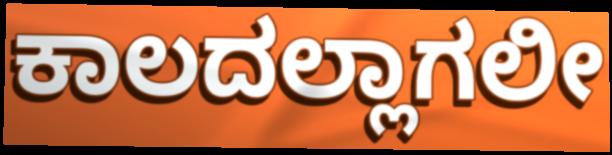
ಕಾಲದಲ್ಲಾಗಲೀ